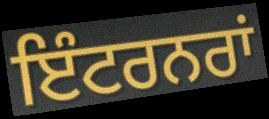
ਇੰਟਰਨਰਾਂ